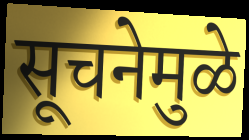
सूचनेमुळे